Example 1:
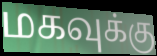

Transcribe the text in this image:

மகவுக்கு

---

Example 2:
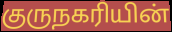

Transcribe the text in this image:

குருநகரியின்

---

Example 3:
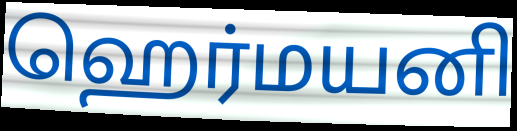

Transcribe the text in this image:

ஹெர்மயனி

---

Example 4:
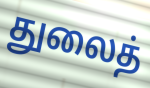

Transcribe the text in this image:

துலைத்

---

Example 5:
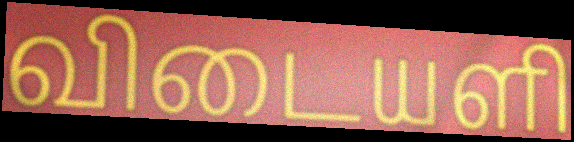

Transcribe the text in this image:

விடையளி